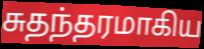
சுதந்தரமாகிய